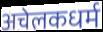
अचेलकधर्म